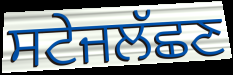
ਸਟੇਜਲੱਛਣ